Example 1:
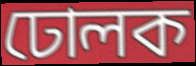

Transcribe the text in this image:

ঢোলক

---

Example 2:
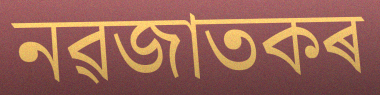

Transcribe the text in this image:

নৱজাতকৰ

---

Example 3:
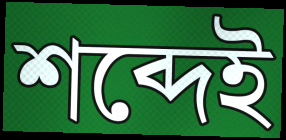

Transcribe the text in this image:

শব্দেই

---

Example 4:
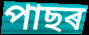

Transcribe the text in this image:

পাছৰ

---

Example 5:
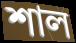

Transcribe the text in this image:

শাল